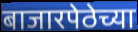
बाजारपेठेच्या